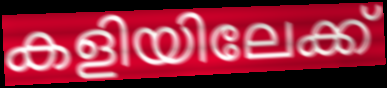
കളിയിലേക്ക്